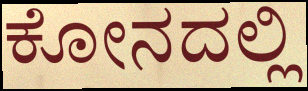
ಕೋನದಲ್ಲಿ